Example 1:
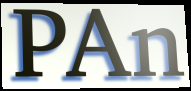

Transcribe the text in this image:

PAn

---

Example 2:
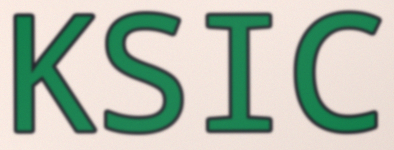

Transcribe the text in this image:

KSIC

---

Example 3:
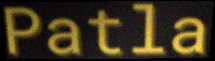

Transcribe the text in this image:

Patla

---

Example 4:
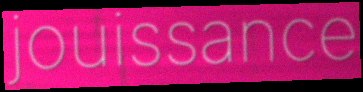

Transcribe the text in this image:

jouissance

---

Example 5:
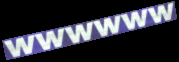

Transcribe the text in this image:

wwwwww